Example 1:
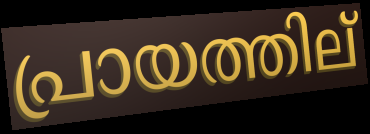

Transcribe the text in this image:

പ്രായത്തില്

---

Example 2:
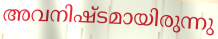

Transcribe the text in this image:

അവനിഷ്ടമായിരുന്നു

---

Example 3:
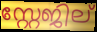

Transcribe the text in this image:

സ്റ്റേജില്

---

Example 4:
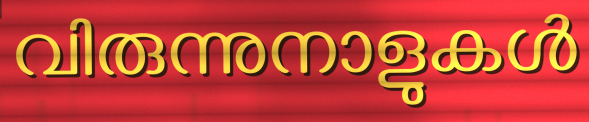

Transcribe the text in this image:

വിരുന്നുനാളുകൾ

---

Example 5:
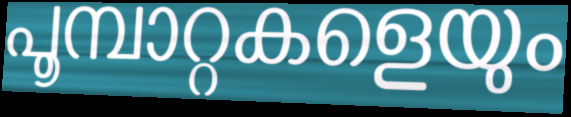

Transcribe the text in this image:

പൂമ്പാറ്റകളെയും